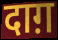
दाग़